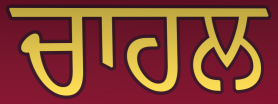
ਚਾਹਲ